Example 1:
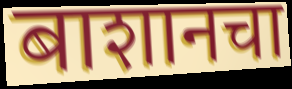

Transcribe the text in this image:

बाशानचा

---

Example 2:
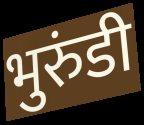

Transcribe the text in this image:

भुरुंडी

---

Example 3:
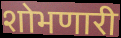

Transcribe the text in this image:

शोभणारी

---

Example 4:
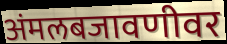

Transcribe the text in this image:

अंमलबजावणीवर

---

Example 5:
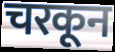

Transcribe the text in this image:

चरकून